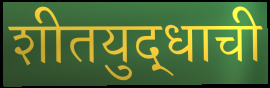
शीतयुद्धाची